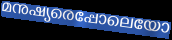
മനുഷ്യരെപ്പോലെയോ